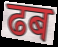
ढब